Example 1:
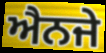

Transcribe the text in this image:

ਐਨਜੇ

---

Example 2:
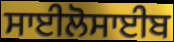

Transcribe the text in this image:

ਸਾਈਲੋਸਾਈਬ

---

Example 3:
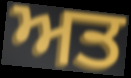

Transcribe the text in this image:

ਅਤ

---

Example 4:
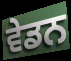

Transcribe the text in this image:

ਵੇਡਨ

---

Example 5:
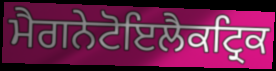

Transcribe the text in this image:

ਮੈਗਨੇਟੋਇਲੈਕਟ੍ਰਿਕ